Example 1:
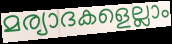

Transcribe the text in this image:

മര്യാദകളെല്ലാം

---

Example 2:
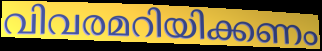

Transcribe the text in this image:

വിവരമറിയിക്കണം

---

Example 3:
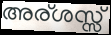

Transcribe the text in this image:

അര്ശസ്സ്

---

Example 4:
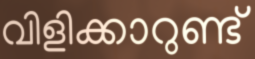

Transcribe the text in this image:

വിളിക്കാറുണ്ട്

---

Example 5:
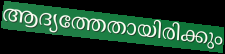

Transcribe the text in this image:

ആദ്യത്തേതായിരിക്കും